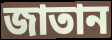
জাতান